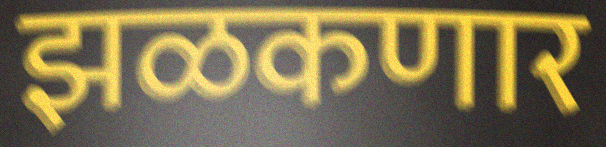
झळकणार